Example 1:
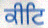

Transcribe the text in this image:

ਕੀਟਿ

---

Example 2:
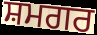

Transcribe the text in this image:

ਸ਼ਮਗਰ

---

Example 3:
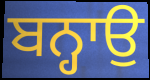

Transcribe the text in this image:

ਬਨ੍ਹਾਉ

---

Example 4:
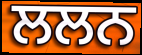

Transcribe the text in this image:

ਲਲਨ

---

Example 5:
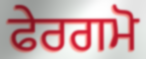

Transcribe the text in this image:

ਫੇਰਗਮੋ